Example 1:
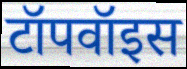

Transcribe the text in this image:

टॉपवॉइस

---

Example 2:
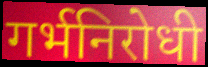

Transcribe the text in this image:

गर्भनिरोधी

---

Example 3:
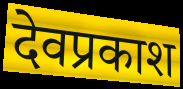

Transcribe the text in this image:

देवप्रकाश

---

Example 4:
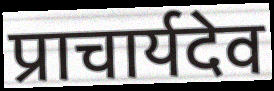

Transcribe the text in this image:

प्राचार्यदेव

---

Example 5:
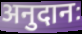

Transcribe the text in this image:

अनुदानः